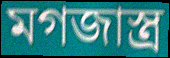
মগজাস্ত্র